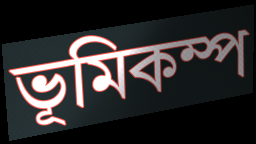
ভূমিকম্প